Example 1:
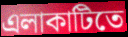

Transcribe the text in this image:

এলাকাটিতে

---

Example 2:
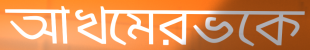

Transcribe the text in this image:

আখমেরভকে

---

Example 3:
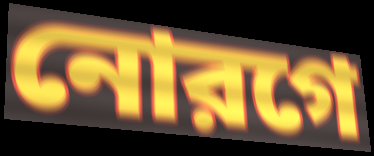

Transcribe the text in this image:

নোরগে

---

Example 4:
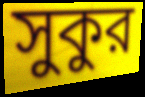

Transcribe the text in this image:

সুকুর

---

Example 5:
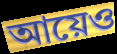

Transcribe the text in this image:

আয়েও